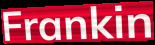
Frankin